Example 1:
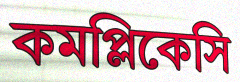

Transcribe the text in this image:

কমপ্লিকেসি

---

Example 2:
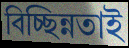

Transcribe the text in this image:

বিচ্ছিন্নতাই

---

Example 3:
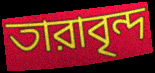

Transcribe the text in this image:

তারাবৃন্দ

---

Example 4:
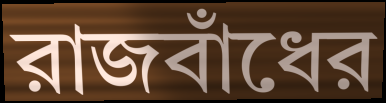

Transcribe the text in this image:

রাজবাঁধের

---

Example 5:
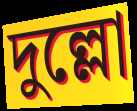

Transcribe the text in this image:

দুল্লো